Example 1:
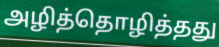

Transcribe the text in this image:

அழித்தொழித்தது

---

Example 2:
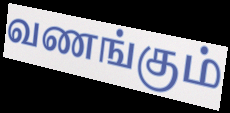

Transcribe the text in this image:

வணங்கும்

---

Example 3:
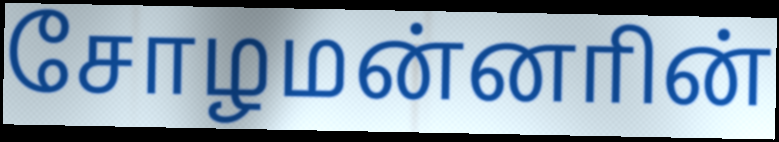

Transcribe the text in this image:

சோழமன்னரின்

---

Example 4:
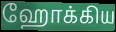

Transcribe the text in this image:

ஹோக்கிய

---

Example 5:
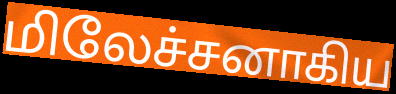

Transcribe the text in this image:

மிலேச்சனாகிய